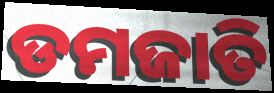
ଡମଜାତି